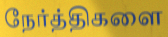
நேர்த்திகளை